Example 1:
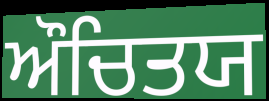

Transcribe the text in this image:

ਔਚਿਤਯ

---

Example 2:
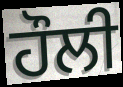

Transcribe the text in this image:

ਹੌਲੀ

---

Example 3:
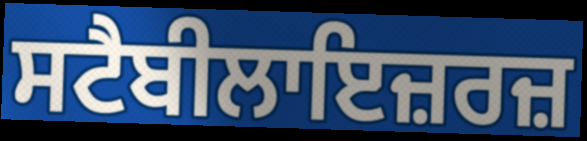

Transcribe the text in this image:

ਸਟੈਬੀਲਾਇਜ਼ਰਜ਼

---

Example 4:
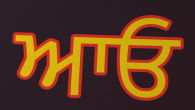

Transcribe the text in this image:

ਆਓ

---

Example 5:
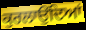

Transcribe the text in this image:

ਕੁਰਲਾਉਂਦਿਆਂ